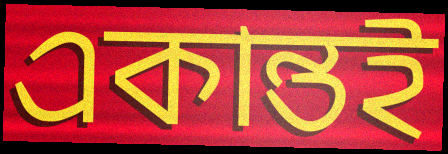
একান্তই